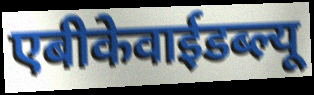
एबीकेवाईडब्ल्यू